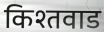
किश्तवाड